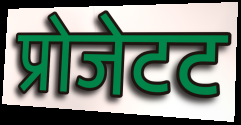
प्रोजेटट